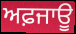
ਅਫ਼ਜਾਊ